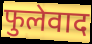
फुलेवाद